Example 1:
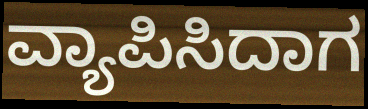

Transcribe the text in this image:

ವ್ಯಾಪಿಸಿದಾಗ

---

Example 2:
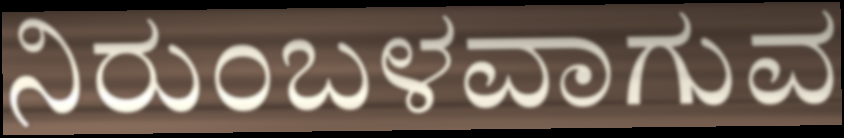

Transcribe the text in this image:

ನಿರುಂಬಳವಾಗುವ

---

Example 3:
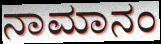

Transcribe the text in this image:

ನಾಮಾನಂ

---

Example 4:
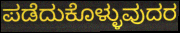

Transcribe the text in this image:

ಪಡೆದುಕೊಳ್ಳುವುದರ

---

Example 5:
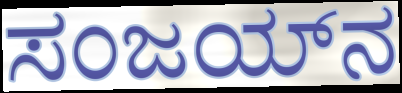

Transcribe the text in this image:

ಸಂಜಯ್‌ನ